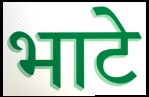
भाटे